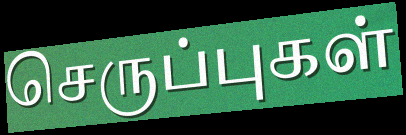
செருப்புகள்